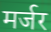
मर्जर